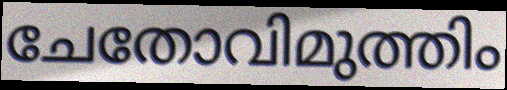
ചേതോവിമുത്തിം